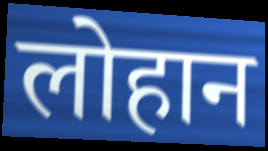
लोहान